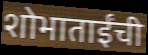
शोभाताईंची